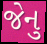
જેનુ